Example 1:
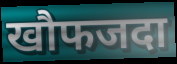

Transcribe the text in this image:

खौफजदा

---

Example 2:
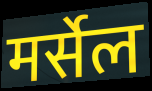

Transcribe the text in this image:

मर्सेल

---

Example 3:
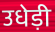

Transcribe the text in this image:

उधेड़ी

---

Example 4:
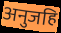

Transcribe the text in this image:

अनुजहि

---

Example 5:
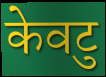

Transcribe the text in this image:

केवटु